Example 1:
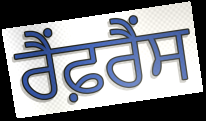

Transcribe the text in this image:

ਰੈਂਫ਼ਰੈਂਸ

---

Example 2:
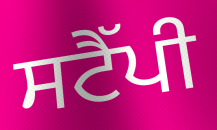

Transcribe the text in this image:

ਸਟੈੱਪੀ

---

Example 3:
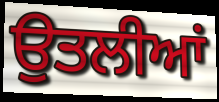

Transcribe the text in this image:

ਉਤਲੀਆਂ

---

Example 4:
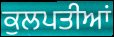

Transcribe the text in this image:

ਕੁਲਪਤੀਆਂ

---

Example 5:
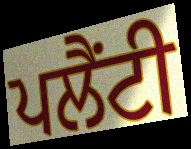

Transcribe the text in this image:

ਪਲੈਂਟੀ